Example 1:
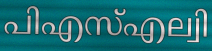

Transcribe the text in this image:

പിഎസ്എല്വി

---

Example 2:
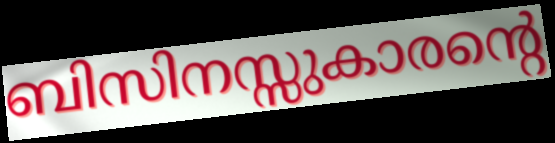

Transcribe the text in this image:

ബിസിനസ്സുകാരന്റെ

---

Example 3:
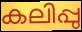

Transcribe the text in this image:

കലിപ്പു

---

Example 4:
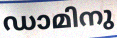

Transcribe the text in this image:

ഡാമിനു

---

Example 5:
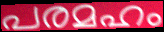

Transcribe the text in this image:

പരമഹം